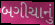
બગીચાનું